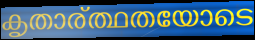
കൃതാര്ത്ഥതയോടെ